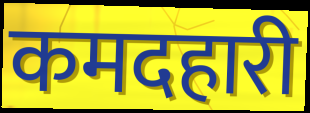
कमदहारी